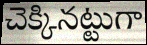
చెక్కినట్టుగా